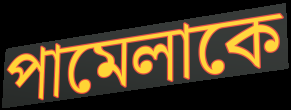
পামেলাকে